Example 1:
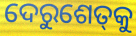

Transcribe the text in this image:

ଦେରୁଶେତ୍‌କୁ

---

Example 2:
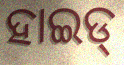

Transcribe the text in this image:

ହାଇଡ୍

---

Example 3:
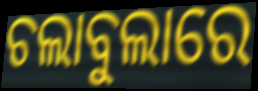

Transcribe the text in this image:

ଚଲାବୁଲାରେ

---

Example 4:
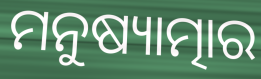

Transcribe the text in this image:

ମନୁଷ୍ୟାତ୍ମାର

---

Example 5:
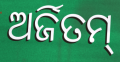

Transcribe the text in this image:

ଅର୍ଜିତମ୍